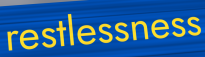
restlessness